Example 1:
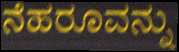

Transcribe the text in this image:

ನೆಹರೂವನ್ನು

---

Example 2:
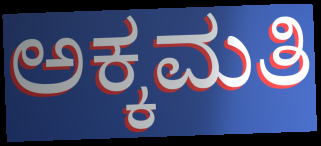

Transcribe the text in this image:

ಅಕ್ಕಮತಿ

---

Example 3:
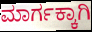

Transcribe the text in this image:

ಮಾರ್ಗಕ್ಕಾಗಿ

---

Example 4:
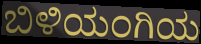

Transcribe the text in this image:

ಬಿಳಿಯಂಗಿಯ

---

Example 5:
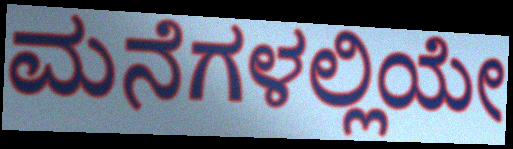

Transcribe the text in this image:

ಮನೆಗಳಲ್ಲಿಯೇ